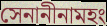
সেনানীনামহং